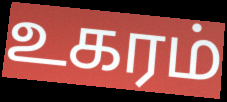
உகரம்